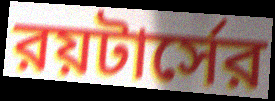
রয়টার্সের